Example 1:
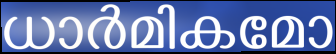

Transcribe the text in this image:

ധാർമികമോ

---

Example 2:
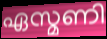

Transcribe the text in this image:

ഏസ്മണി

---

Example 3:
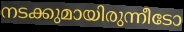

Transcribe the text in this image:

നടക്കുമായിരുന്നീടോ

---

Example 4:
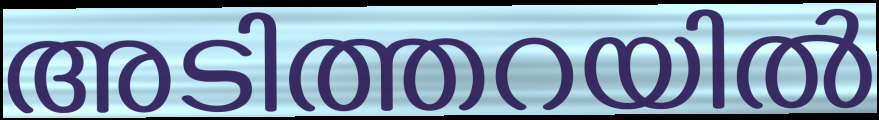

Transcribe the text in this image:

അടിത്തറയിൽ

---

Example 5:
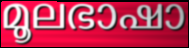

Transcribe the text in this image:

മൂലഭാഷാ